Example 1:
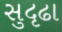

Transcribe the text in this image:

સુદૃઢા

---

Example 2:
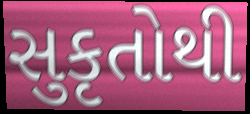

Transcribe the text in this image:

સુકૃતોથી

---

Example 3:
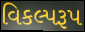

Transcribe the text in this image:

વિકલ્પરૂપ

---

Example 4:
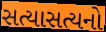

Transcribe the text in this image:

સત્યાસત્યનો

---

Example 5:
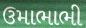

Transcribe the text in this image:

ઉમાભાભી